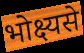
भोक्ष्यसे